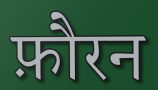
फ़ौरन